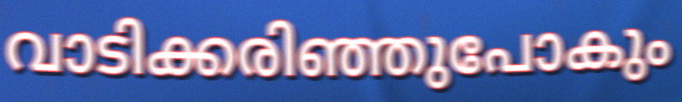
വാടിക്കരിഞ്ഞുപോകും